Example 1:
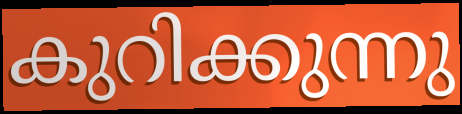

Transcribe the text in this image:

കുറിക്കുന്നു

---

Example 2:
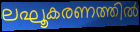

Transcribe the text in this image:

ലഘൂകരണത്തിൽ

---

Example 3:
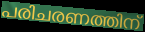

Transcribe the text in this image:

പരിചരണത്തിന്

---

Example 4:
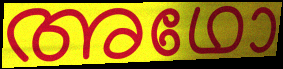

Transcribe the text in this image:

അഥോ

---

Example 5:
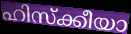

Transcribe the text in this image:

ഹിസ്ക്കീയാ